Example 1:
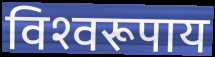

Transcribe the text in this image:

विश्वरूपाय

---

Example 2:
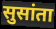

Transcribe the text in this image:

सुसांता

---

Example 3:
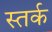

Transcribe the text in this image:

स्तर्क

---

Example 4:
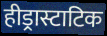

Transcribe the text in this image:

हीड्रास्टाटिक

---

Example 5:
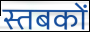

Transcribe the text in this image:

स्तबकों